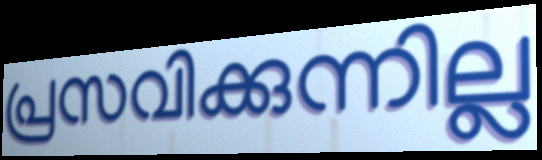
പ്രസവിക്കുന്നില്ല